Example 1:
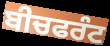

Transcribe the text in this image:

ਬੀਚਫਰੰਟ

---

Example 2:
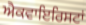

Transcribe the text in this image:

ਐਕਵਾਇਰਿਸਟਾਂ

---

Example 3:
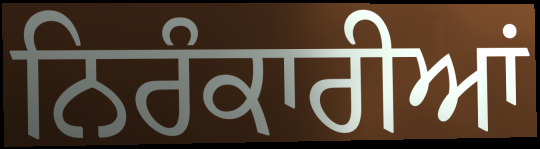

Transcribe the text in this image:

ਨਿਰੰਕਾਰੀਆਂ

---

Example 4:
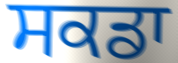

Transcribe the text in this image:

ਸਕਡਾ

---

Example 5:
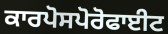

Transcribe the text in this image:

ਕਾਰਪੋਸਪੋਰੋਫਾਈਟ